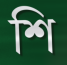
শি